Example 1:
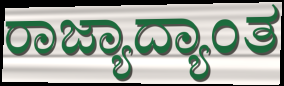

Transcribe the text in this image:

ರಾಜ್ಯಾದ್ಯಾಂತ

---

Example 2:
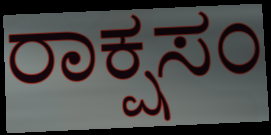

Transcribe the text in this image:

ರಾಕ್ಷಸಂ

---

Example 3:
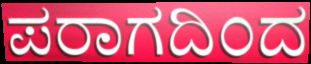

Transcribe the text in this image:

ಪರಾಗದಿಂದ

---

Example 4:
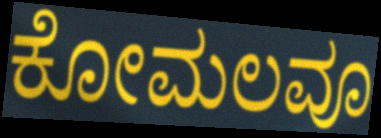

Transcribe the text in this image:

ಕೋಮಲವೂ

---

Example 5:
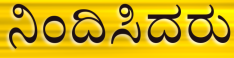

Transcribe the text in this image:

ನಿಂದಿಸಿದರು